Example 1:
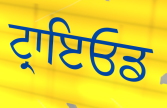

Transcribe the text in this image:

ਟ੍ਰਾਇਓਡ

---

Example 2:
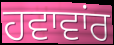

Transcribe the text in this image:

ਹਵਾਵਾਂਰ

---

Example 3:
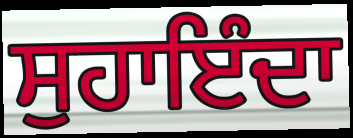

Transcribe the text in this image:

ਸੁਹਾਇੰਦਾ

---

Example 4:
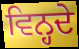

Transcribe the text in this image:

ਵਿਨ੍ਹਦੇ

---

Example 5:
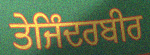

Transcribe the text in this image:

ਤੇਜਿੰਦਰਬੀਰ